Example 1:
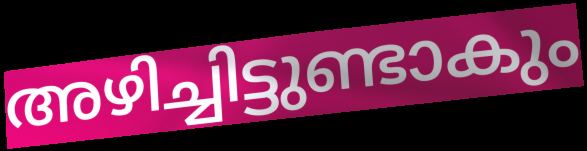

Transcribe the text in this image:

അഴിച്ചിട്ടുണ്ടാകും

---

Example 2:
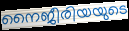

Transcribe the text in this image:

നൈജീരിയയുടെ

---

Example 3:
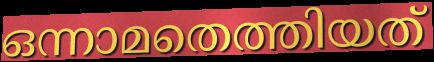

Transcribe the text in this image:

ഒന്നാമതെത്തിയത്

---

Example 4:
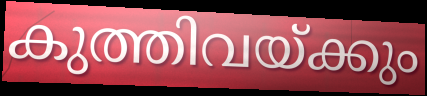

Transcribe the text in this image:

കുത്തിവയ്ക്കും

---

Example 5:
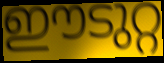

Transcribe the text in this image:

ഈടുറ്റ